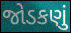
જોડકણું